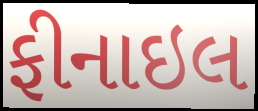
ફીનાઇલ